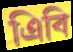
এিবি